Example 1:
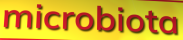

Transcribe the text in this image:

microbiota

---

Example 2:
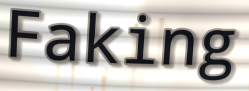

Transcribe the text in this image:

Faking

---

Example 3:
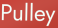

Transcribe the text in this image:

Pulley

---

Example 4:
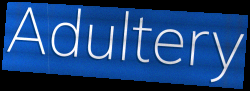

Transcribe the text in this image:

Adultery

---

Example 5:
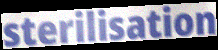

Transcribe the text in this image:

sterilisation